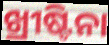
ଖ୍ରୀଷ୍ଟିନା